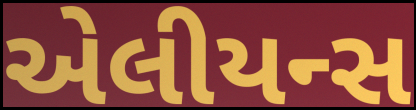
એલીયન્સ